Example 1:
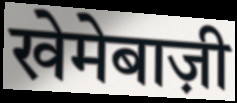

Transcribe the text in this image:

खेमेबाज़ी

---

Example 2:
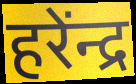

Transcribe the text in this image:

हरेंन्द्र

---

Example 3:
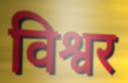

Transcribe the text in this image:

विश्वर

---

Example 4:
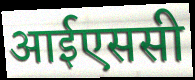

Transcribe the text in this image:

आईएससी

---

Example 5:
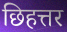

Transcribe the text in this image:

छिहत्तर